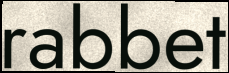
rabbet